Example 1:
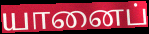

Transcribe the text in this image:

யானைப்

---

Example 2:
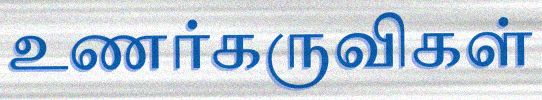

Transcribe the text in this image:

உணர்கருவிகள்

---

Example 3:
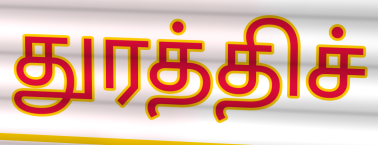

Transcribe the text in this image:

துரத்திச்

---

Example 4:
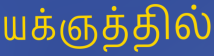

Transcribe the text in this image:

யக்ஞத்தில்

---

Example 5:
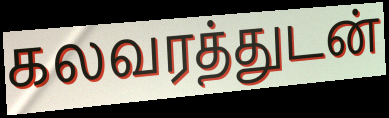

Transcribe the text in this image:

கலவரத்துடன்